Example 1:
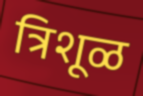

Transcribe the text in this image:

त्रिशूळ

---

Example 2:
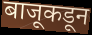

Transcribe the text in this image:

बाजूकडून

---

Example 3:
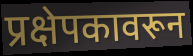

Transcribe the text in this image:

प्रक्षेपकावरून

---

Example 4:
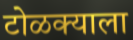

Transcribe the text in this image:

टोळक्याला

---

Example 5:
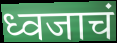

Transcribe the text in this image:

ध्वजाचं